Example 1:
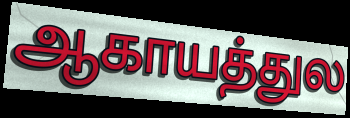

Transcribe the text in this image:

ஆகாயத்துல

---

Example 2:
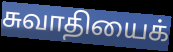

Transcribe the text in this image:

சுவாதியைக்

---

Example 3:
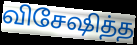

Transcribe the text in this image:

விசேஷித்த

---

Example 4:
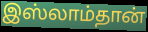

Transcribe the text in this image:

இஸ்லாம்தான்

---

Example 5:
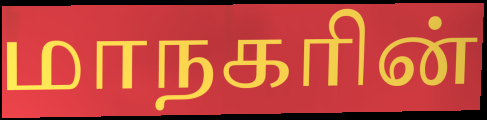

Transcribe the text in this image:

மாநகரின்